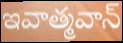
ఇవాత్మవాన్